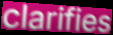
clarifies